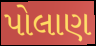
પોલાણ